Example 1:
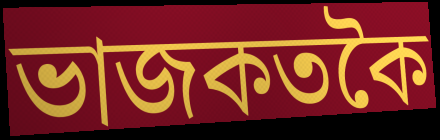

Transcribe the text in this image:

ভাজকতকৈ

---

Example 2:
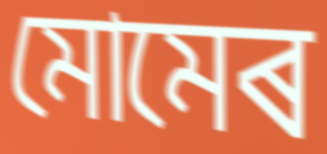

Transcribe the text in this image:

মোমেৰ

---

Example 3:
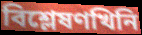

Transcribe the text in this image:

বিশ্লেষণখিনি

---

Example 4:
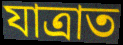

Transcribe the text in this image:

যাত্ৰাত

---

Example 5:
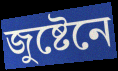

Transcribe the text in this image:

জুষ্টেনে